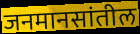
जनमानसांतील